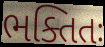
ભક્તિતઃ